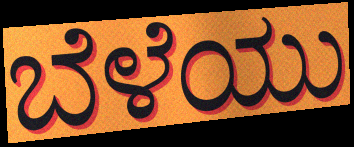
ಬೆಳೆಯು